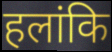
हलांकि